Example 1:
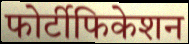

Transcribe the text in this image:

फोर्टीफिकेशन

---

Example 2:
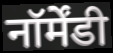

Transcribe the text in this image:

नॉर्मेंडी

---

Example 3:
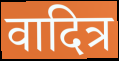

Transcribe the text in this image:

वादित्र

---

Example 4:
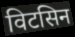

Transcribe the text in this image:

विटसिन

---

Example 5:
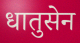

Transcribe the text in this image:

धातुसेन